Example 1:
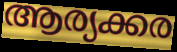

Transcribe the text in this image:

ആര്യക്കര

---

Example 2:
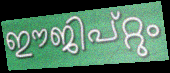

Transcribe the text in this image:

ഈജിപ്റ്റും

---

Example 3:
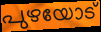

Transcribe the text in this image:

പുഴയോട്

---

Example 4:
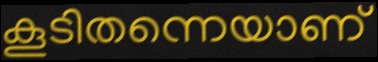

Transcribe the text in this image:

കൂടിതന്നെയാണ്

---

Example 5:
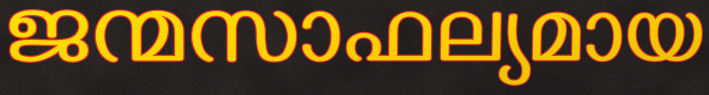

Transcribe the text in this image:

ജന്മസാഫല്യമായ